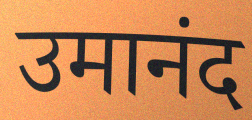
उमानंद